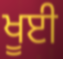
ਖੂਈ